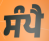
ਸੰਪੈ